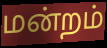
மன்றம்